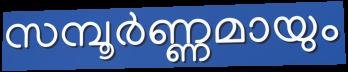
സമ്പൂർണ്ണമായും